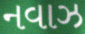
નવાઝ